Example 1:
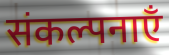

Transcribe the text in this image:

संकल्पनाएँ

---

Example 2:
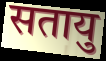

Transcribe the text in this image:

सतायु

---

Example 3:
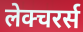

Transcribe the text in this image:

लेक्चरर्स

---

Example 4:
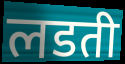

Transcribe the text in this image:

लडती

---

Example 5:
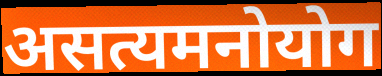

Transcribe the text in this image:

असत्यमनोयोग